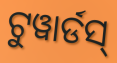
ଟୁୱାର୍ଡସ୍